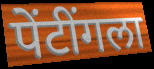
पेंटींगला